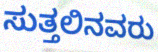
ಸುತ್ತಲಿನವರು